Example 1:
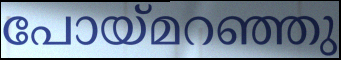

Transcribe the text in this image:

പോയ്മറഞ്ഞു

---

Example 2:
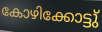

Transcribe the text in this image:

കോഴിക്കോട്ടു്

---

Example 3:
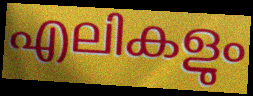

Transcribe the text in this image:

എലികളും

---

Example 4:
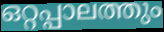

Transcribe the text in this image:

ഒറ്റപ്പാലത്തും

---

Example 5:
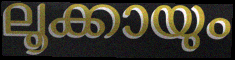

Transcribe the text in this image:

ലൂക്കായും